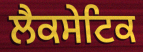
ਲੈਕਸੇਟਿਕ